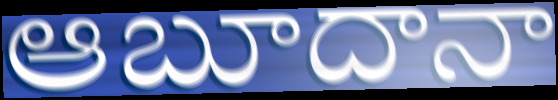
ఆబూదానా